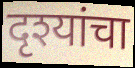
दृश्यांचा